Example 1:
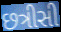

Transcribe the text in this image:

છત્રીસી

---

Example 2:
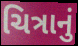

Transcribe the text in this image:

ચિત્રાનું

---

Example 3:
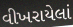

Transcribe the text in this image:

વીખરાયેલાં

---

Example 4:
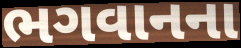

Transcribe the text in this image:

ભગવાનના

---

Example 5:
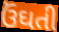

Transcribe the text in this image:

ઉંઘતી